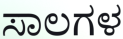
ಸಾಲಗಳ